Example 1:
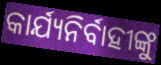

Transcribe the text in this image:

କାର୍ଯ୍ୟନିର୍ବାହୀଙ୍କୁ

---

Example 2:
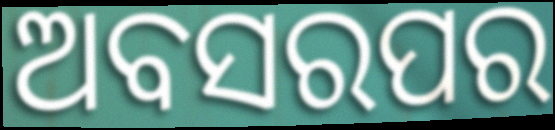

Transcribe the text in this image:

ଅବସରପର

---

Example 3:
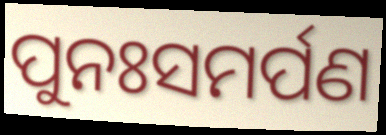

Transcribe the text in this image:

ପୁନଃସମର୍ପଣ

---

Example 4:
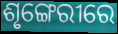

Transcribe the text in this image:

ଶୃଙ୍ଗେରୀରେ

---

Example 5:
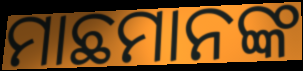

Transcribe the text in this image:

ମାଛମାନଙ୍କ